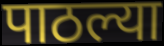
पाठल्या